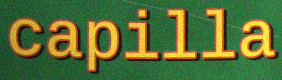
capilla